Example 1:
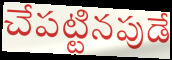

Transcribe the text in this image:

చేపట్టినపుడే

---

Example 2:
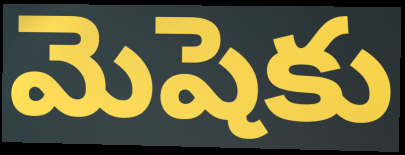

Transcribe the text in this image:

మెషెకు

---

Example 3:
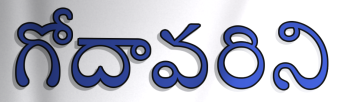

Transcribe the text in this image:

గోదావరిని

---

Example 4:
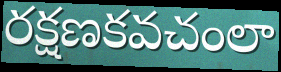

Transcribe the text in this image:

రక్షణకవచంలా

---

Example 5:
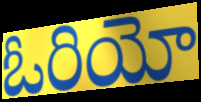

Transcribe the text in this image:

ఓరియో